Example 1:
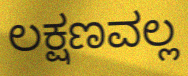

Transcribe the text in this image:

ಲಕ್ಷಣವಲ್ಲ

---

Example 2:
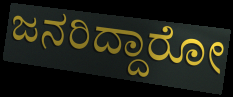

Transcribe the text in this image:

ಜನರಿದ್ದಾರೋ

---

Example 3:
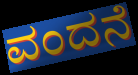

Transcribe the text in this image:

ವಂದನೆ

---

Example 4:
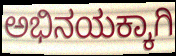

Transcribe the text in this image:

ಅಭಿನಯಕ್ಕಾಗಿ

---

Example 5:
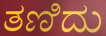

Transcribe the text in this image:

ತಣಿದು